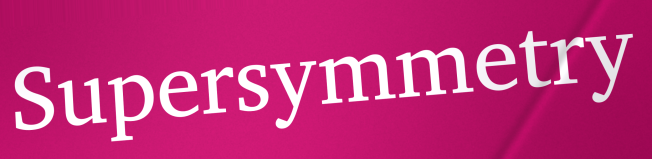
Supersymmetry